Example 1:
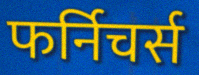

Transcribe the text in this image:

फर्निचर्स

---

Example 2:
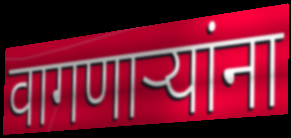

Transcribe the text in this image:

वागणार्‍यांना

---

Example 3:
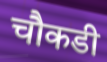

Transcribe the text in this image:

चौकडी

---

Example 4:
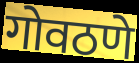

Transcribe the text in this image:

गोवठणे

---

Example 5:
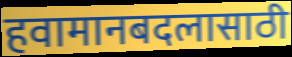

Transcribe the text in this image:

हवामानबदलासाठी